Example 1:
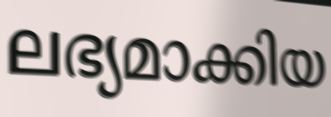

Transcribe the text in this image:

ലഭ്യമാക്കിയ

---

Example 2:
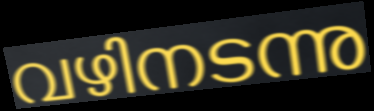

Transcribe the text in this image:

വഴിനടന്നു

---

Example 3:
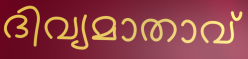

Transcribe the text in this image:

ദിവ്യമാതാവ്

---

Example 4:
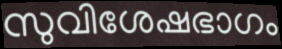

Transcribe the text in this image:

സുവിശേഷഭാഗം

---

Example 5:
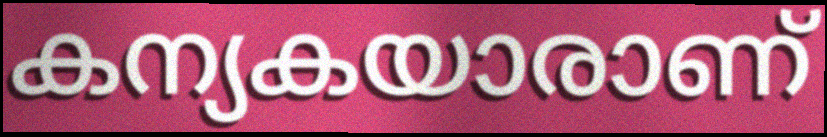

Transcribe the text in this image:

കന്യകയാരാണ്